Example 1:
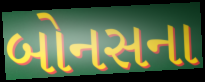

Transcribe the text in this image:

બોનસના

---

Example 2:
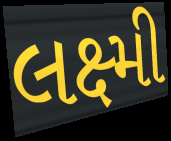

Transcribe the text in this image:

લક્ષ્મી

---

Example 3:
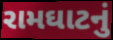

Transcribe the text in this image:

રામઘાટનું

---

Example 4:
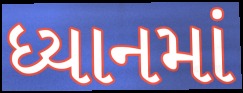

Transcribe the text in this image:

ધ્યાનમાં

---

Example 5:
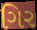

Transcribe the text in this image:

ગિર